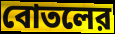
বোতলের